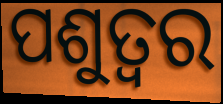
ପଶୁତ୍ୱର